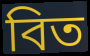
বিত